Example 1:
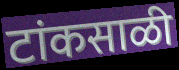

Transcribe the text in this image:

टांकसाळी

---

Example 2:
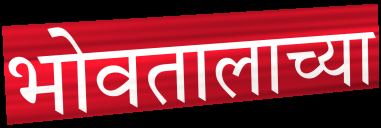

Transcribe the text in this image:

भोवतालाच्या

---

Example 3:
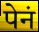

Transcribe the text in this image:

पेनं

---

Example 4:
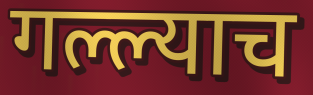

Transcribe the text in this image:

गल्ल्याच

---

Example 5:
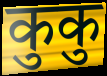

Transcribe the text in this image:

कुकु